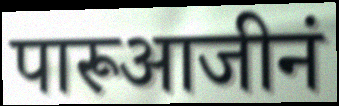
पारूआजीनं